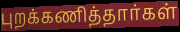
புறக்கணித்தார்கள்